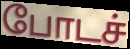
போடச்